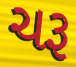
ચરૂ